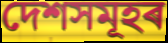
দেশসমূহৰ